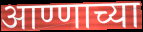
आण्णाच्या